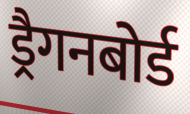
ड्रैगनबोर्ड